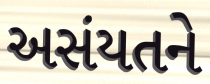
અસંયતને